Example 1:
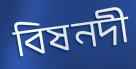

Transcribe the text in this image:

বিষনদী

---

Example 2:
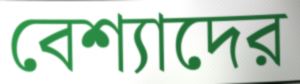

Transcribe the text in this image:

বেশ্যাদের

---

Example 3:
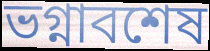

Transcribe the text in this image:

ভগ্নাবশেষ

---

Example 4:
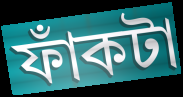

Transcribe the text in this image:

ফাঁকটা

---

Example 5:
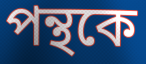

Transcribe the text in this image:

পন্থকে